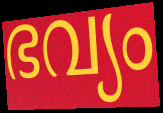
ഭവ്യം